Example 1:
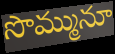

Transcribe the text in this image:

సొమ్మునూ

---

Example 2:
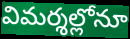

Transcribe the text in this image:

విమర్శల్లోనూ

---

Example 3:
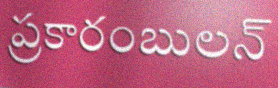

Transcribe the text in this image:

ప్రకారంబులన్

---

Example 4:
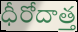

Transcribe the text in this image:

ధీరోదాత్త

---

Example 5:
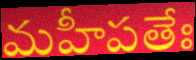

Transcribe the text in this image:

మహీపతేః